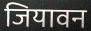
जियावन